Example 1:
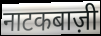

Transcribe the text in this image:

नाटकबाज़ी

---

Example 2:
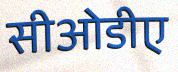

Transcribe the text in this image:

सीओडीए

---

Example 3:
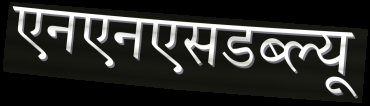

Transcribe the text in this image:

एनएनएसडब्ल्यू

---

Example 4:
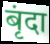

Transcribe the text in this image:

बृंदा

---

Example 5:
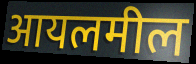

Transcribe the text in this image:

आयलमील